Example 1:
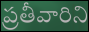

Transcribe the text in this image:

ప్రతీవారిని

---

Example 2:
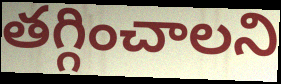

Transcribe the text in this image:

తగ్గించాలని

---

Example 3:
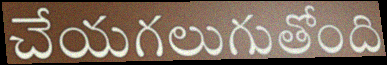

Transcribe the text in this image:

చేయగలుగుతోంది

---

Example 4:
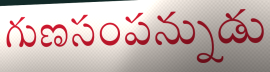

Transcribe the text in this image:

గుణసంపన్నుడు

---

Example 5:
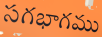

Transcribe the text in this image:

సగభాగము